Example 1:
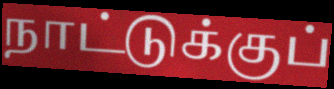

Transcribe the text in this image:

நாட்டுக்குப்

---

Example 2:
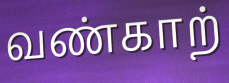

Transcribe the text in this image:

வண்காற்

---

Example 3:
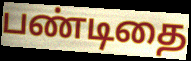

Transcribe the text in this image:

பண்டிதை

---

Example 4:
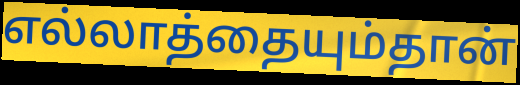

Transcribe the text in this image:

எல்லாத்தையும்தான்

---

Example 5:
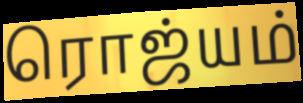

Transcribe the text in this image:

ரொஜ்யம்